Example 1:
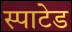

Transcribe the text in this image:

स्पाटेड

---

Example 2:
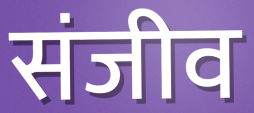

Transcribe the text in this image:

संजीव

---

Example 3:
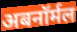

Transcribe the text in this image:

अबनॉर्मल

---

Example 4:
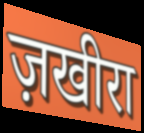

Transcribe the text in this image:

ज़खीरा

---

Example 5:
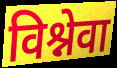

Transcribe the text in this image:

विश्नेवा